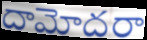
దామోదరా